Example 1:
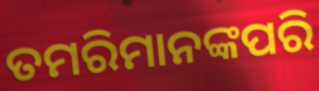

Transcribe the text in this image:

ତମରିମାନଙ୍କପରି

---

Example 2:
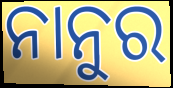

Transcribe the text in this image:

ନାନୁର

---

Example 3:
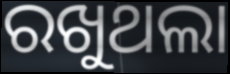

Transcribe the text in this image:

ରଖୁଥଲା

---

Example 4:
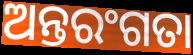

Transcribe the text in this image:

ଅନ୍ତରଂଗତା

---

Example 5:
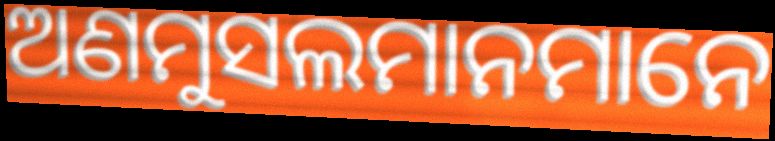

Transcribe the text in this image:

ଅଣମୁସଲମାନମାନେ